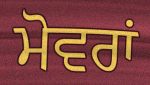
ਮੋਵਰਾਂ